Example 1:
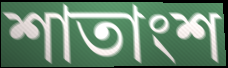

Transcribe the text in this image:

শাতাংশ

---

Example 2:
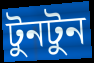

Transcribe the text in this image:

টুনটুন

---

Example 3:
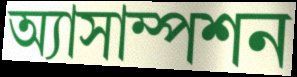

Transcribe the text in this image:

অ্যাসাম্পশন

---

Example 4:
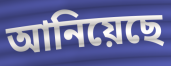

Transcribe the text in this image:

আনিয়েছে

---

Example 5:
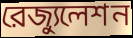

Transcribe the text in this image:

রেজ্যুলেশন